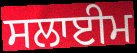
ਸਲਾਈਮ